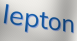
lepton